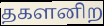
தகளனிற